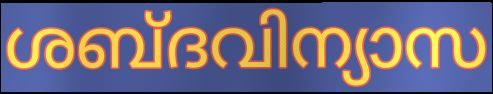
ശബ്ദവിന്യാസ